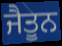
ਜੈਤੂਨ